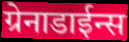
ग्रेनाडाईन्स